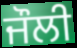
ਜੌਲੀ